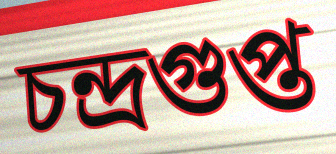
চন্দ্ৰগুপ্ত